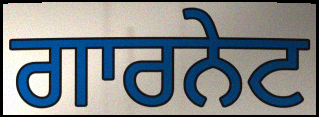
ਗਾਰਨੇਟ